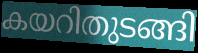
കയറിതുടങ്ങി